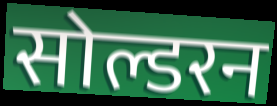
सोल्डरन